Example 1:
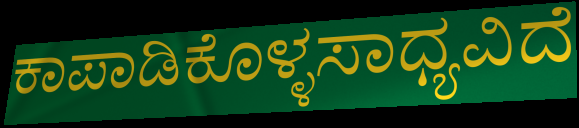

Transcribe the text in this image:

ಕಾಪಾಡಿಕೊಳ್ಳಸಾಧ್ಯವಿದೆ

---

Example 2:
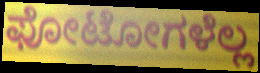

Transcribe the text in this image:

ಫೋಟೋಗಳೆಲ್ಲ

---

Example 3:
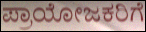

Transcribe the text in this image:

ಪ್ರಾಯೋಜಕರಿಗೆ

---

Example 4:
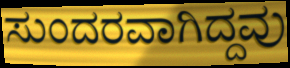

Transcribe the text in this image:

ಸುಂದರವಾಗಿದ್ದವು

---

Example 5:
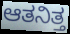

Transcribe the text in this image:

ಆತನಿತ್ತ